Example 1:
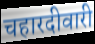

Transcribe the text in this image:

चहारदीवारी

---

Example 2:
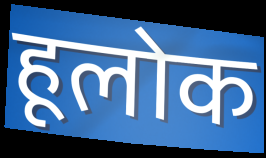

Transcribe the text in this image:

हूलोक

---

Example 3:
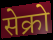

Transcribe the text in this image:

सेक्रो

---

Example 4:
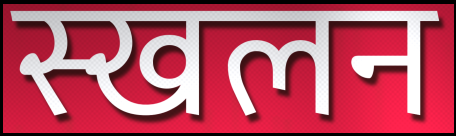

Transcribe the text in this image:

स्‍खलन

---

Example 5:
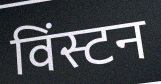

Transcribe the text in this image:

विंस्टन